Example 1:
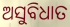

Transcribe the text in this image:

ଅସୁବିଧାତ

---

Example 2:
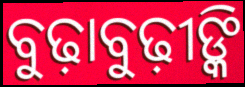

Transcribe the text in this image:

ବୁଢ଼ାବୁଢ଼ୀଙ୍କି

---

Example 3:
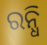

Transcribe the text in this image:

ରନ୍ଧି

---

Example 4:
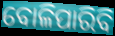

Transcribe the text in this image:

ବୋଳିପାରିବି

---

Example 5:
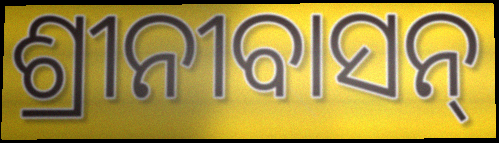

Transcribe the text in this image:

ଶ୍ରୀନୀବାସନ୍